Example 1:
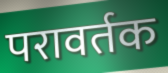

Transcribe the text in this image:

परावर्तक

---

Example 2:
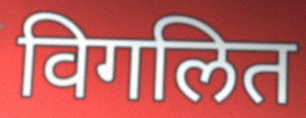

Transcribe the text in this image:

विगलित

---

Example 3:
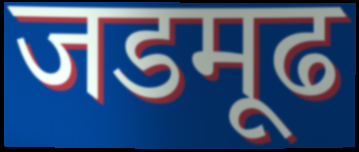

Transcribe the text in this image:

जडमूढ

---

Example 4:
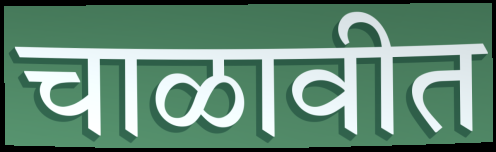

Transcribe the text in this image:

चाळावीत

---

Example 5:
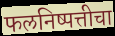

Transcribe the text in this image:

फलनिष्पत्तीचा